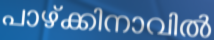
പാഴ്ക്കിനാവിൽ